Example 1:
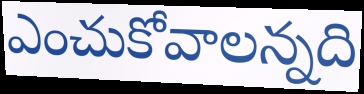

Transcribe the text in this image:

ఎంచుకోవాలన్నది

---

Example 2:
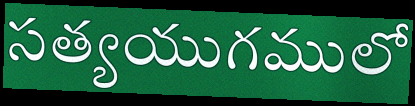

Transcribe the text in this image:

సత్యయుగములో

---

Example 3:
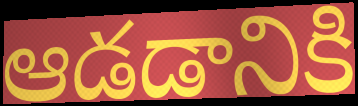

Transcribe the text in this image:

ఆడడానికి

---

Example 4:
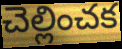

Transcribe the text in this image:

చెల్లించక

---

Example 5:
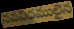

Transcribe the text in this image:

నవవిధములైన